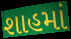
શાહમાં